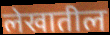
लेखातील